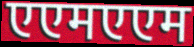
एएमएएम